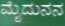
ಮೈದುನನ